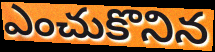
ఎంచుకొనిన